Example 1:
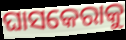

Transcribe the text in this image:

ଘାସକେରାକୁ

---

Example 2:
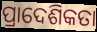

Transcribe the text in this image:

ପ୍ରାଦେଶିକତା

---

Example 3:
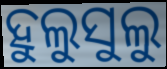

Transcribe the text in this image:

ହୁଲୁସୁଲୁ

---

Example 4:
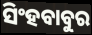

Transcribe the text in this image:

ସିଂହବାବୁର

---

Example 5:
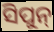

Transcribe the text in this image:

ସିପୁନ୍